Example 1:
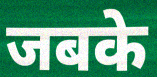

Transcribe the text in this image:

जबके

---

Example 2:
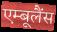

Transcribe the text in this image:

एम्बूलैंस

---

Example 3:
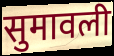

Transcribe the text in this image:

सुमावली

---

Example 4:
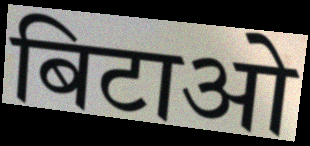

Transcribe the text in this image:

बिटाओ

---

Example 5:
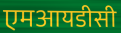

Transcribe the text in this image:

एमआयडीसी